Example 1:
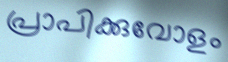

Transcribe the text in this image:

പ്രാപിക്കുവോളം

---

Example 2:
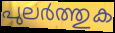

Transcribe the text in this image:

പുലർത്തുക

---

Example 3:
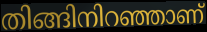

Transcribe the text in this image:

തിങ്ങിനിറഞ്ഞാണ്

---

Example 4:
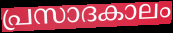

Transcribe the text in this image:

പ്രസാദകാലം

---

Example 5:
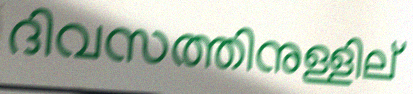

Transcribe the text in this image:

ദിവസത്തിനുള്ളില്